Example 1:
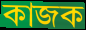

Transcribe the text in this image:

কাজক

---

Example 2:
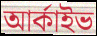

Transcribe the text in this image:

আৰ্কাইভ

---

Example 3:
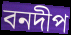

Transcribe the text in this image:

বনদীপ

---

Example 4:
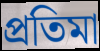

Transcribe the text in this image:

প্ৰতিমা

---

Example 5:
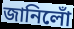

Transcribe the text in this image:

জানিলোঁ